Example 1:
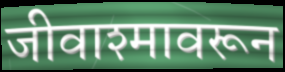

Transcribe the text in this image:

जीवाश्मावरून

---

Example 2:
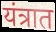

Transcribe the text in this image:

यंत्रात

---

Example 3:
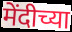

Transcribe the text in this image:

मेंदीच्या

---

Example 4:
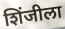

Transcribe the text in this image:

शिंजीला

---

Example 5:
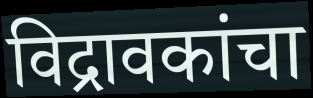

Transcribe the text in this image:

विद्रावकांचा